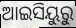
ଆଇସିୟୁରୁ